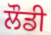
ਲੌਡੀ